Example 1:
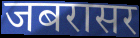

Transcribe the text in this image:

जबरासर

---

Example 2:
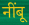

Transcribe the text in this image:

नींबू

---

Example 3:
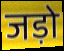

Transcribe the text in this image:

जड़ो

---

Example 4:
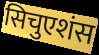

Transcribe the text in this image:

सिचुएशंस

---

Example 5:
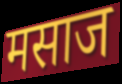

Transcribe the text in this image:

मसाज